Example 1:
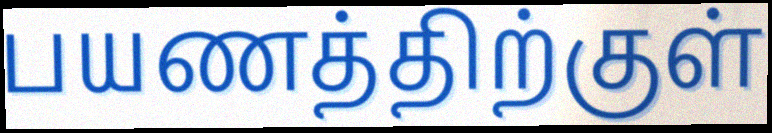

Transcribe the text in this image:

பயணத்திற்குள்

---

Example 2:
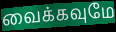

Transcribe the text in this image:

வைக்கவுமே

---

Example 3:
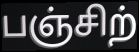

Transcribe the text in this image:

பஞ்சிற்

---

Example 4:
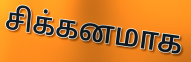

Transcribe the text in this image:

சிக்கனமாக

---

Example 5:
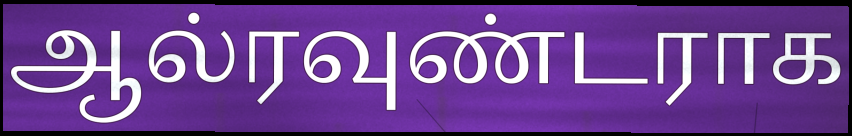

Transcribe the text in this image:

ஆல்ரவுண்டராக